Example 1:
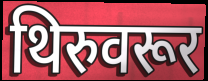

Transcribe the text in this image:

थिरुवरूर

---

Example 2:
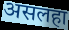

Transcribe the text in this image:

असलहा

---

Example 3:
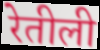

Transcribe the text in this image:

रेतीली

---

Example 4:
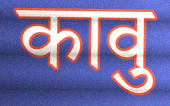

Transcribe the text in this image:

कावु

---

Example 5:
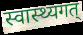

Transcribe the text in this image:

स्वास्थ्यगत्